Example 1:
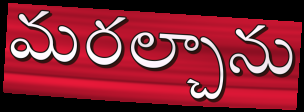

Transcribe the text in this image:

మరల్చాను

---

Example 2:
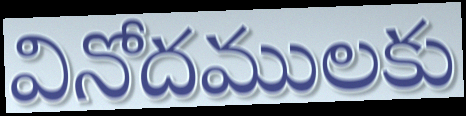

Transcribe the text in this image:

వినోదములకు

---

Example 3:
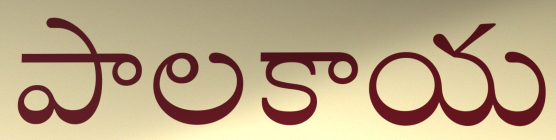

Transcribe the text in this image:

పాలకాయ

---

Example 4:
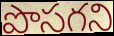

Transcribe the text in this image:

పొసగని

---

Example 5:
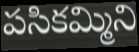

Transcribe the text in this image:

పసికమ్మిని